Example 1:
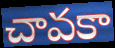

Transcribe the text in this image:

చావకా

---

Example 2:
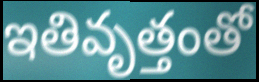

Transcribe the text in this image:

ఇతివృత్తంతో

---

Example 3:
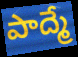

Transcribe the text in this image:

పాద్మే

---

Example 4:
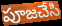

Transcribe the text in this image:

పూజచేసి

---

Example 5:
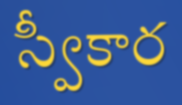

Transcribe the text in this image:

స్వీకార